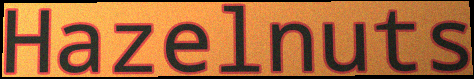
Hazelnuts